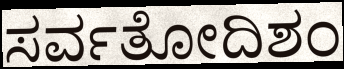
ಸರ್ವತೋದಿಶಂ